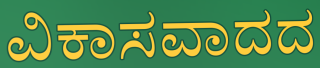
ವಿಕಾಸವಾದದ